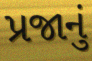
પ્રજાનું